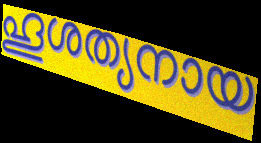
ഹൂശത്യനായ